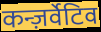
कन्ज़र्वेटिव